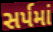
સર્પમાં